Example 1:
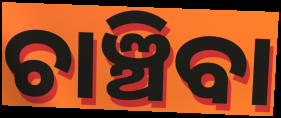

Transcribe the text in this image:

ଚାଞ୍ଚିବା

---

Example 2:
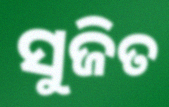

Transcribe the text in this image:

ସୁଜିତ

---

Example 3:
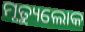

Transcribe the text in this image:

ମୃତ୍ୟୁଲୋକ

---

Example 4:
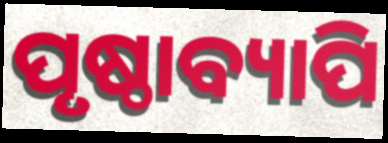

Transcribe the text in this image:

ପୃଷ୍ଠାବ୍ୟାପି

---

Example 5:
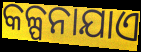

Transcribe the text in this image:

କଳ୍ପନାଯାଏ